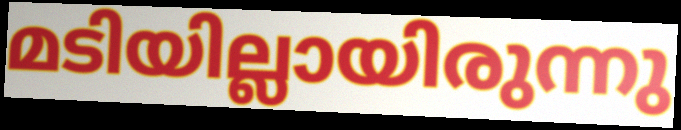
മടിയില്ലായിരുന്നു